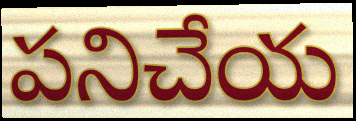
పనిచేయ